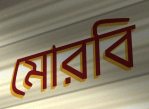
মোরবি